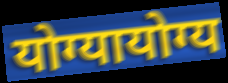
योग्यायोग्य